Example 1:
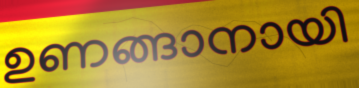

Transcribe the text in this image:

ഉണങ്ങാനായി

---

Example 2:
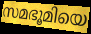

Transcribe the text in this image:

സമഭൂമിയെ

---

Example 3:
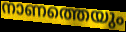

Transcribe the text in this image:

നാണത്തെയും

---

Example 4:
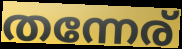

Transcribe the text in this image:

തന്നേര്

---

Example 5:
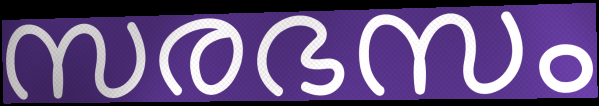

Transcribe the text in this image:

സരഭസം